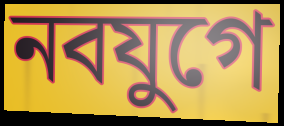
নবযুগে